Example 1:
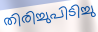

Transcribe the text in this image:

തിരിച്ചുപിടിച്ചു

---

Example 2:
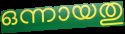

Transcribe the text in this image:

ഒന്നായതു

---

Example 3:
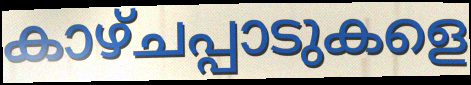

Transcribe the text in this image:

കാഴ്ചപ്പാടുകളെ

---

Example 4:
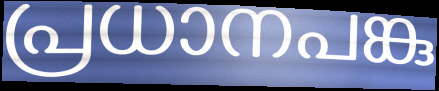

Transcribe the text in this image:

പ്രധാനപങ്കു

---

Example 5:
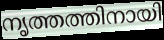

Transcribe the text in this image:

നൃത്തത്തിനായി